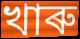
খাৰু